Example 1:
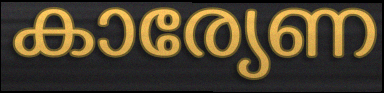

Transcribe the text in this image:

കാര്യേണ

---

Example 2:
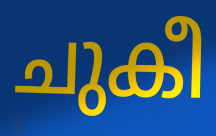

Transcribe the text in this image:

ചുകീ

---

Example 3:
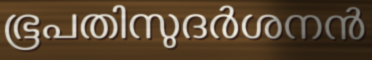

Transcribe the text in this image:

ഭൂപതിസുദർശനൻ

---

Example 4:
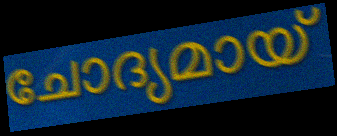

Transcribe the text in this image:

ചോദ്യമായ്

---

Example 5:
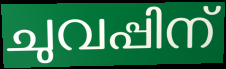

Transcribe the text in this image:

ചുവപ്പിന്